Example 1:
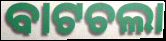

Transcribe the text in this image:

ବାଟଚଲା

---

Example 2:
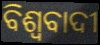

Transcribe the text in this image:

ବିଶ୍ଵବାଦୀ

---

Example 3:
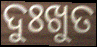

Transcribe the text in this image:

ଦୁଃଖୁତ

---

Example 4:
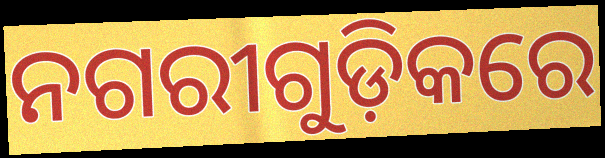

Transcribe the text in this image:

ନଗରୀଗୁଡ଼ିକରେ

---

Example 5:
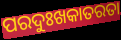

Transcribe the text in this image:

ପରଦୁଃଖକାତରତା